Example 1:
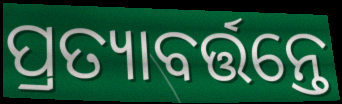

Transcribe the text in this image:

ପ୍ରତ୍ୟାବର୍ତ୍ତନ୍ତେ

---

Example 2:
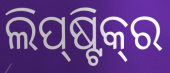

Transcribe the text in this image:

ଲିପ୍‌ଷ୍ଟିକ୍‌ର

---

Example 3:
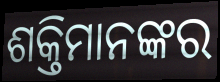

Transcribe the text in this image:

ଶକ୍ତିମାନଙ୍କର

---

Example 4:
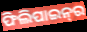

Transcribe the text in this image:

ଫିଲିପାଇନ୍‌ର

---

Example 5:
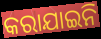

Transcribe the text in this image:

କରାଯାଇନି